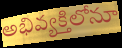
అభివ్యక్తిలోనూ